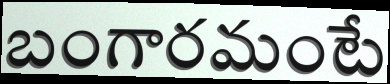
బంగారమంటే